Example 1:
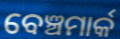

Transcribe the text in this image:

ବେଞ୍ଚମାର୍କ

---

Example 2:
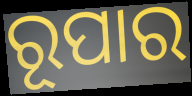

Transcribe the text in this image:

ରୂପାର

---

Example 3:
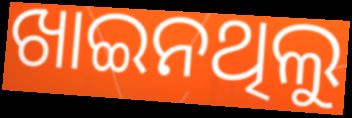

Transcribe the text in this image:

ଖାଇନଥିଲୁ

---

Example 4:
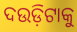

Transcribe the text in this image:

ଦଉଡ଼ିଟାକୁ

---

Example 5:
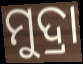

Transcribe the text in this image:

ମୁଦ୍ରା